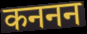
कननन